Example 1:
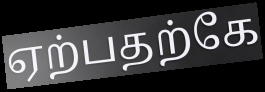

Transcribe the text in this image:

ஏற்பதற்கே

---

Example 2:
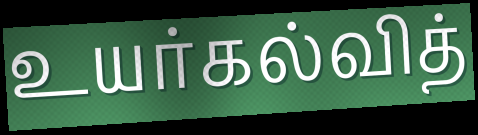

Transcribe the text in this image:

உயர்கல்வித்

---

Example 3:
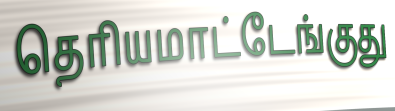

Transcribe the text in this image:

தெரியமாட்டேங்குது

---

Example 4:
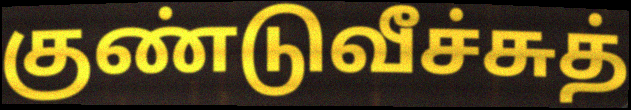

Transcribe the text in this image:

குண்டுவீச்சுத்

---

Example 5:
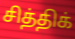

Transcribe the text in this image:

சித்திக்